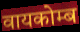
वायकोम्ब